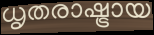
ധൃതരാഷ്ട്രായ